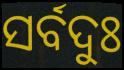
ସର୍ବଦୁଃ